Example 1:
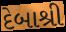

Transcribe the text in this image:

દેબાશ્રી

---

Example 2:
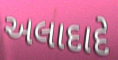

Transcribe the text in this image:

અલાદાદે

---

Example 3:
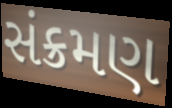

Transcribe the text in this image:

સંક્રમણ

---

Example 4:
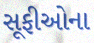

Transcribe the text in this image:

સૂફીઓના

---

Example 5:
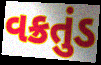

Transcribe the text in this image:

વક્રતુંડ